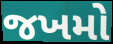
જખમો